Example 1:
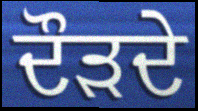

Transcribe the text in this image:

ਦੌੜਦੇ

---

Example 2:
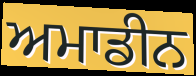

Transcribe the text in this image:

ਅਮਾਡੀਨ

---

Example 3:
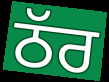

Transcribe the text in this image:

ਠੱਰ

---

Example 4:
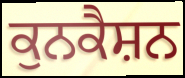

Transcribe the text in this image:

ਕੁਨਕੈਸ਼ਨ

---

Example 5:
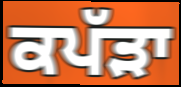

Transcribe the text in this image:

ਕਪੱੜਾ